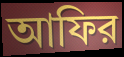
আফির